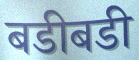
बडीबडी